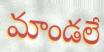
మాండలే